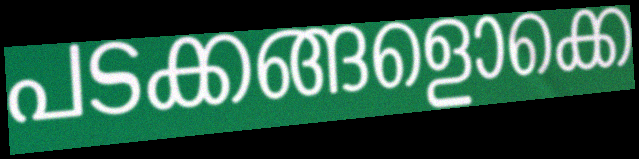
പടക്കങ്ങളൊക്കെ